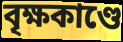
বৃক্ষকাণ্ডে